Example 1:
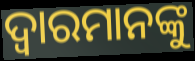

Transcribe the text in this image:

ଦ୍ୱାରମାନଙ୍କୁ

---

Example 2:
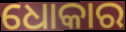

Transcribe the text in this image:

ଧୋକାର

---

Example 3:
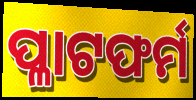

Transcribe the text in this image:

ପ୍ଳାଟଫର୍ମ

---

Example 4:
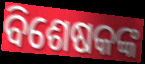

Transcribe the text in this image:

ବିଶେଷକଙ୍କ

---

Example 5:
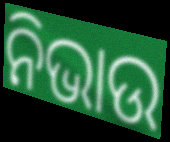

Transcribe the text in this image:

ନିଭାଉ